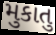
મુકાતુ